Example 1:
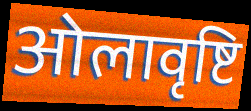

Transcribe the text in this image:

ओलावृष्टि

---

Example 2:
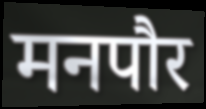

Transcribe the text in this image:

मनपौर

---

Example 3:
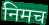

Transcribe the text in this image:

निमच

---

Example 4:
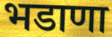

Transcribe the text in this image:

भडाणा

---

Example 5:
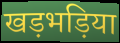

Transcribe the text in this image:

खड़भड़िया